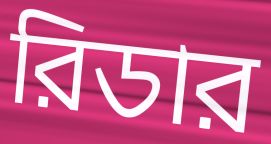
রিডার